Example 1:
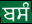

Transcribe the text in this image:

ਬਸੰ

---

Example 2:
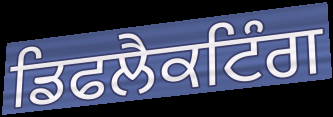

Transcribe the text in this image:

ਡਿਫਲੈਕਟਿੰਗ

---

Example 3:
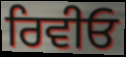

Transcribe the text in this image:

ਰਿਵੀਓ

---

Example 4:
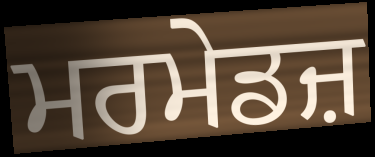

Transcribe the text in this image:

ਮਰਮੇਡਜ਼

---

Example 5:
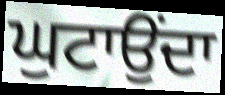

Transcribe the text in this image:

ਘੁਟਾਉਂਦਾ